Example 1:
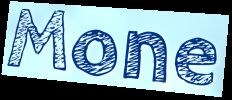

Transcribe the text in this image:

Mone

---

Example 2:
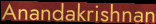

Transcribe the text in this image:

Anandakrishnan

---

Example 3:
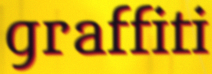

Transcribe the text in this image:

graffiti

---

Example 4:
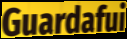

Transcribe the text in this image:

Guardafui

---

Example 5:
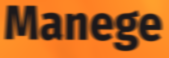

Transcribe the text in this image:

Manege